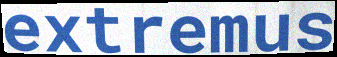
extremus